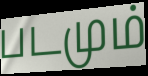
படமும்